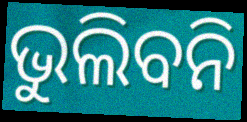
ଭୁଲିବନି